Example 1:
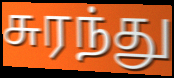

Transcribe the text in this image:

சுரந்து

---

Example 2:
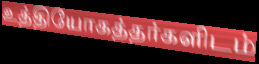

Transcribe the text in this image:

உத்தியோகத்தர்களிடம்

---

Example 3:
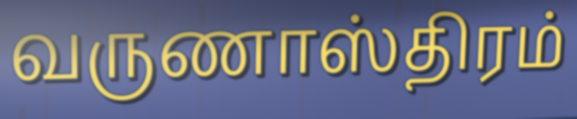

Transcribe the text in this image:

வருணாஸ்திரம்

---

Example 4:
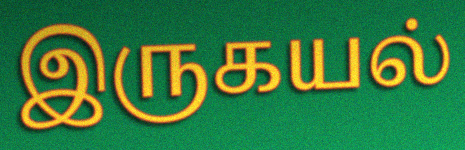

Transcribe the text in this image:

இருகயல்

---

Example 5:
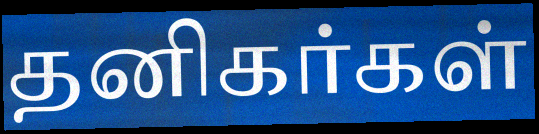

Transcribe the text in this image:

தனிகர்கள்